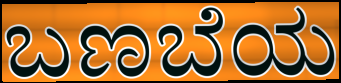
ಬಣಬೆಯ